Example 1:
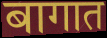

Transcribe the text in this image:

बागात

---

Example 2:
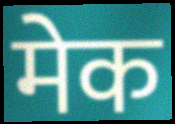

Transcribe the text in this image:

मेक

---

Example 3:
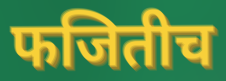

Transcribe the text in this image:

फजितीच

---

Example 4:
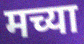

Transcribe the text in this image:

मच्या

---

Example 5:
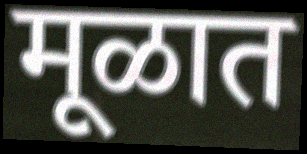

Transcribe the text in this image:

मूळात